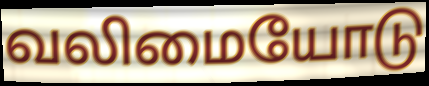
வலிமையோடு